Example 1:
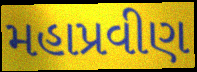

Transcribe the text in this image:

મહાપ્રવીણ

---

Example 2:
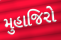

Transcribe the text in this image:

મુહાજિરો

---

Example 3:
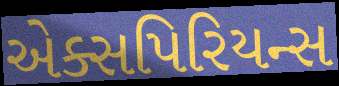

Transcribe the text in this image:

એક્સપિરિયન્સ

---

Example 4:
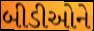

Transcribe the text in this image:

બીડીઓને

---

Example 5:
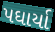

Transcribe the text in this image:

પઘાર્યા